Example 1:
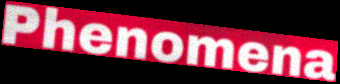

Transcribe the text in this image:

Phenomena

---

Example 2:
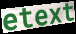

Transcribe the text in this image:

etext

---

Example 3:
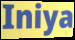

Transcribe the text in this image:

Iniya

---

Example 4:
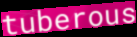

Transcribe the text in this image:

tuberous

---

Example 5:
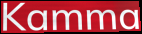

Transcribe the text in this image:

Kamma